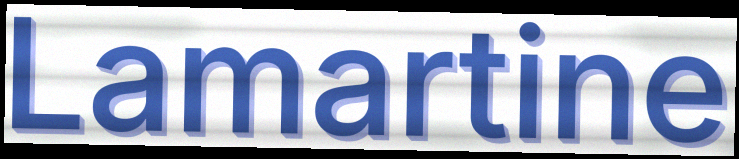
Lamartine